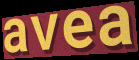
avea